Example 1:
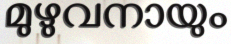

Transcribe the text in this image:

മുഴുവനായും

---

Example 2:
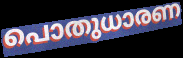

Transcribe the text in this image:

പൊതുധാരണ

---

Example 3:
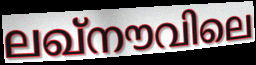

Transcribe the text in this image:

ലഖ്നൗവിലെ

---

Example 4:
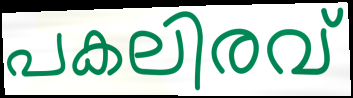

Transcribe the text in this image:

പകലിരവ്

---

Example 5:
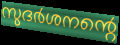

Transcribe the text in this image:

സുദർശനന്റെ